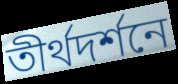
তীর্থদর্শনে